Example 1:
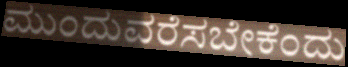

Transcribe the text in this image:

ಮುಂದುವರೆಸಬೇಕೆಂದು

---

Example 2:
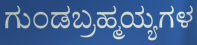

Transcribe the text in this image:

ಗುಂಡಬ್ರಹ್ಮಯ್ಯಗಳ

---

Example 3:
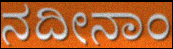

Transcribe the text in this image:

ನದೀನಾಂ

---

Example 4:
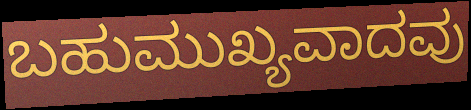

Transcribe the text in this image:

ಬಹುಮುಖ್ಯವಾದವು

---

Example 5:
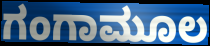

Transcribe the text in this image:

ಗಂಗಾಮೂಲ